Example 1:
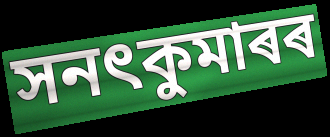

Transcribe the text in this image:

সনৎকুমাৰৰ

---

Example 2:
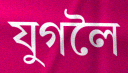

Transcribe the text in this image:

যুগলৈ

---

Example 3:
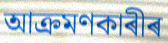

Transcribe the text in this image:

আক্ৰমণকাৰীৰ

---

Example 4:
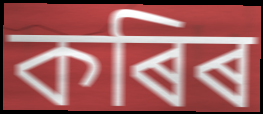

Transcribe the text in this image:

কৰিৰ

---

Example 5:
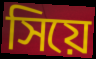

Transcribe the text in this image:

সিয়ে